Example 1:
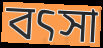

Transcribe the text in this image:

বৎসা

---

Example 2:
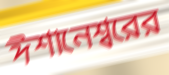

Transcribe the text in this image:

ঈশানেশ্বরের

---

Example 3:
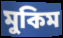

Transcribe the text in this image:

মুকিম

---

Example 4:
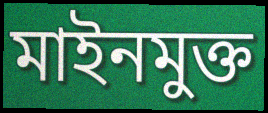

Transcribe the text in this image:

মাইনমুক্ত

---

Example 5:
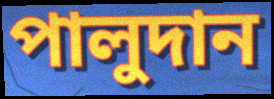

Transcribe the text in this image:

পালুদান